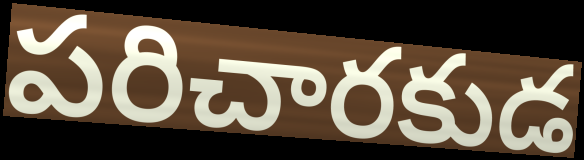
పరిచారకుడ